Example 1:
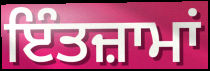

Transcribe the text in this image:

ਇੰਤਜ਼ਾਮਾਂ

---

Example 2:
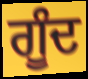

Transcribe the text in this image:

ਗੂੰਦ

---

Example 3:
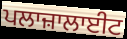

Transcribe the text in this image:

ਪਲਾਜ਼ਾਲਾਈਟ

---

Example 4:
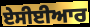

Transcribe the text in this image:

ਏਸੀਈਆਰ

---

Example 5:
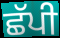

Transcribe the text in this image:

ਛੱਪੀ